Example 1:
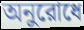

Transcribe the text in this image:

অনুরোধে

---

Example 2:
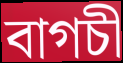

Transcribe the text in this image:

বাগচী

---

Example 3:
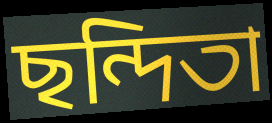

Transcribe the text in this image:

ছন্দিতা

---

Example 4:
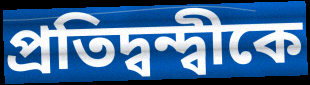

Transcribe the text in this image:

প্রতিদ্বন্দ্বীকে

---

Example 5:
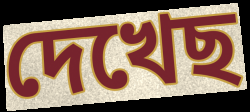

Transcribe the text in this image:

দেখেছ